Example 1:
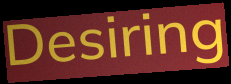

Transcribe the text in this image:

Desiring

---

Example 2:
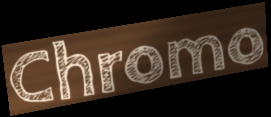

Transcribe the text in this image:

Chromo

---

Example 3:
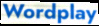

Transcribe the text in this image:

Wordplay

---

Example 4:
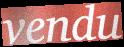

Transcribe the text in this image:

vendu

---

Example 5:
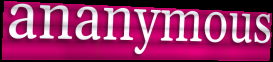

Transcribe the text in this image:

ananymous